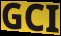
GCI